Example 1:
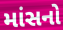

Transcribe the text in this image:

માંસનો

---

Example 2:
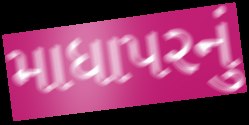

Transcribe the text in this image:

માધાપરનું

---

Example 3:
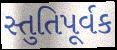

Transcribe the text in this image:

સ્તુતિપૂર્વક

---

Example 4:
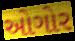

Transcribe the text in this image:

ઓગોર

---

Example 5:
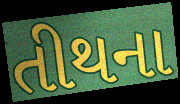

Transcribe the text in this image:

તીથના